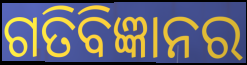
ଗତିବିଜ୍ଞାନର